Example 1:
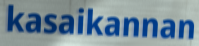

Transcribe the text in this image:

kasaikannan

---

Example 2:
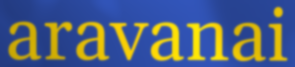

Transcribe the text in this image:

aravanai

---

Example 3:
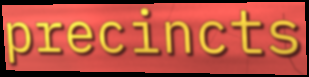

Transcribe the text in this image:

precincts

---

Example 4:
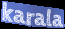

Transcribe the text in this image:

karala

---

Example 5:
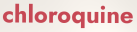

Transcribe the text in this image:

chloroquine